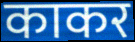
काकर